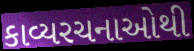
કાવ્યરચનાઓથી